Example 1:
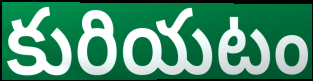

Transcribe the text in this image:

కురియటం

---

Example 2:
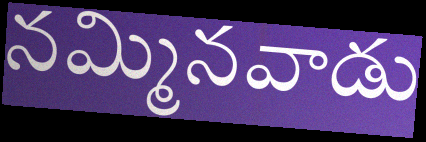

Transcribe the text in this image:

నమ్మినవాడు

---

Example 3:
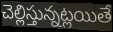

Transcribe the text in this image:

చెల్లిస్తున్నట్లయితే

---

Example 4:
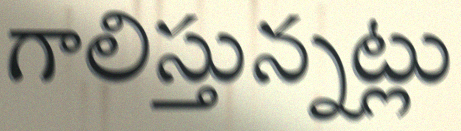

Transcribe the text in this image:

గాలిస్తున్నట్లు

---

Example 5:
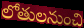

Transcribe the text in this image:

లోతులనుంచి